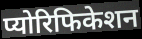
प्योरिफिकेशन